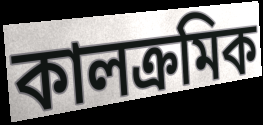
কালক্ৰমিক